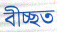
বীচ্ছত